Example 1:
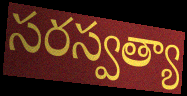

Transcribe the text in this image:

సరస్వత్యా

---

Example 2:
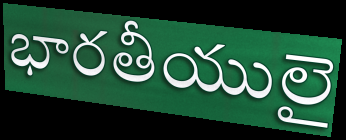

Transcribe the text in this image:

భారతీయులై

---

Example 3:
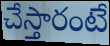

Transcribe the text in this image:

చేస్తారంటే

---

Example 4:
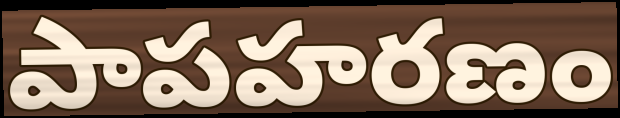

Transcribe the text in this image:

పాపహరణం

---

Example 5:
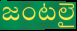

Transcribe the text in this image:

జంటలై